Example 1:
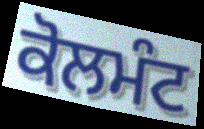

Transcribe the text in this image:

ਕੋਲਮੰਟ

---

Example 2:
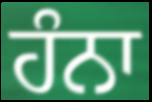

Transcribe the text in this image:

ਹੰਨਾ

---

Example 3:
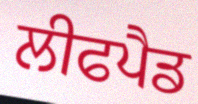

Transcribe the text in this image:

ਲੀਫਪੈਡ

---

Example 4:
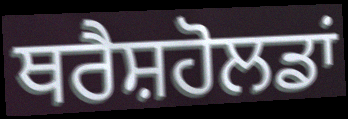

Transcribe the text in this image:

ਥਰੈਸ਼ਹੋਲਡਾਂ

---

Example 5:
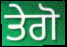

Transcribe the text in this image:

ਤੇਗੋ